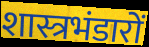
शास्त्रभंडारों